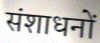
संशाधनों